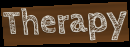
Therapy